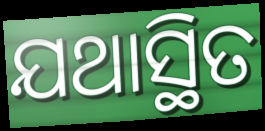
ଯଥାସ୍ଥିତ